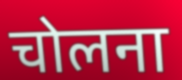
चोलना